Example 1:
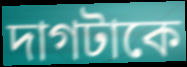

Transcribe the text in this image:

দাগটাকে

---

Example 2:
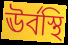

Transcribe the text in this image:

ঊর্বস্থি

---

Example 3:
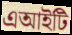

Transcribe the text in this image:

এআইটি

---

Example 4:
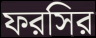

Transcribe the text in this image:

ফরসির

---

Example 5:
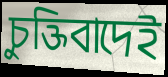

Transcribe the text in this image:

চুক্তিবাদেই